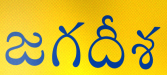
జగదీశ